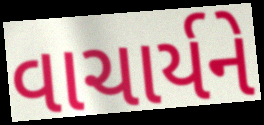
વાચાર્યને